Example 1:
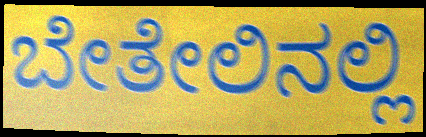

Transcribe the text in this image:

ಬೇತೇಲಿನಲ್ಲಿ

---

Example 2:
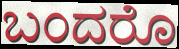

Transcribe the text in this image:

ಬಂದರೊ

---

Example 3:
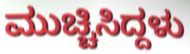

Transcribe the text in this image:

ಮುಚ್ಚಿಸಿದ್ದಳು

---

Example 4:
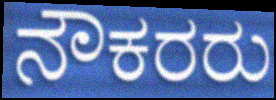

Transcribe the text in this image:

ನೌಕರರು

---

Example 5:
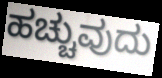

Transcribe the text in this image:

ಹಚ್ಚುವುದು